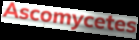
Ascomycetes